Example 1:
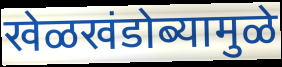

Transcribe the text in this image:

खेळखंडोब्यामुळे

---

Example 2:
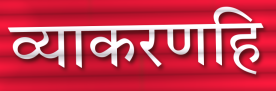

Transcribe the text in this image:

व्याकरणहि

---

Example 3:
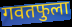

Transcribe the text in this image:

गवतफुला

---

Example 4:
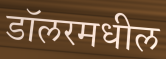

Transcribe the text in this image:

डॉलरमधील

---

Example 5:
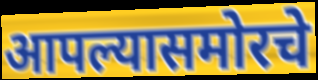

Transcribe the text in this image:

आपल्यासमोरचे